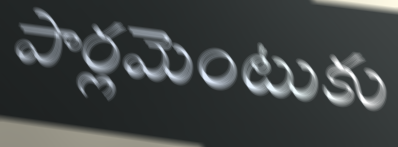
పార్లమెంటుకు